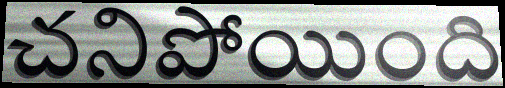
చనిపోయింది